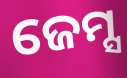
ଜେମ୍ସ